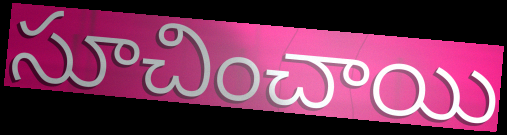
సూచించాయి